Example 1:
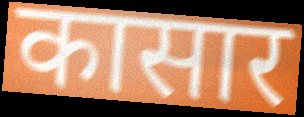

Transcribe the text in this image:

कासार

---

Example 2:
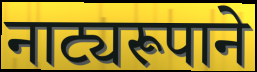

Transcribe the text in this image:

नाट्यरूपाने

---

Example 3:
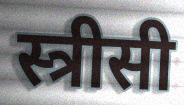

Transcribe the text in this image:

स्त्रीसी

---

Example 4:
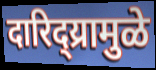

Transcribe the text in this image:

दारिद्य्रामुळे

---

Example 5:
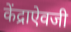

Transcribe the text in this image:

केंद्राऐवजी